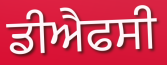
ਡੀਐਫਸੀ